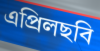
এপ্রিলছবি